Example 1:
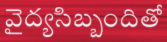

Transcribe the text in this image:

వైద్యసిబ్బందితో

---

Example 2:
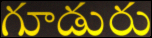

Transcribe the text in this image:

గూడురు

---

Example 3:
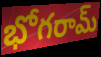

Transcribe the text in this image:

భోగరామ్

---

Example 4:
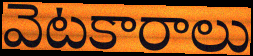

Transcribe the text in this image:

వెటకారాలు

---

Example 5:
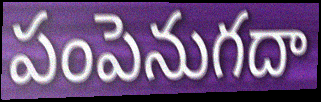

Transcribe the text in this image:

పంపెనుగదా